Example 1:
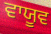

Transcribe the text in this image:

ਵਾਯੂਵ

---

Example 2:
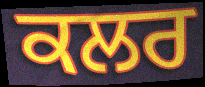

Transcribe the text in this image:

ਕਲਰ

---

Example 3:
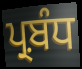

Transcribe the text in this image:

ਪ਼੍ਰਬੰਧ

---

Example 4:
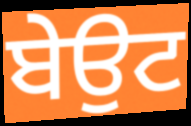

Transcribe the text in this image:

ਬੇਉਟ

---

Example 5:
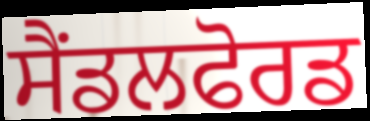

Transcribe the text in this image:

ਸੈਂਡਲਫੋਰਡ